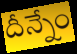
దీన్నేం